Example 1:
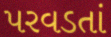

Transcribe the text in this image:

પરવડતાં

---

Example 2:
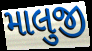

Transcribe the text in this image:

માલુજી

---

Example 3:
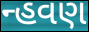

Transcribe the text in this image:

ન્હવણ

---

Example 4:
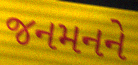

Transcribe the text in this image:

જનમનને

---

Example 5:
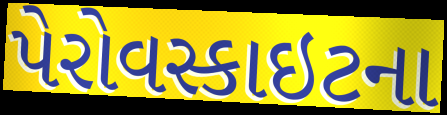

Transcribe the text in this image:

પેરોવસ્કાઇટના